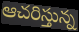
ఆచరిస్తున్న